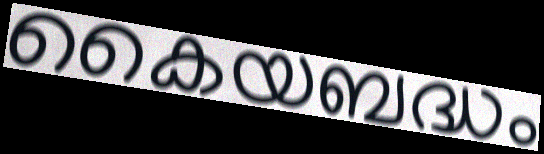
കൈയബദ്ധം